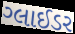
ગ્લાઈડર